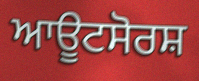
ਆਊਟਸੋਰਸ਼